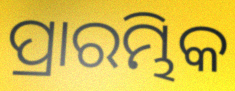
ପ୍ରାରମ୍ଭିକ